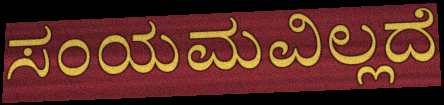
ಸಂಯಮವಿಲ್ಲದೆ